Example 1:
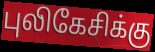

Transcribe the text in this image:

புலிகேசிக்கு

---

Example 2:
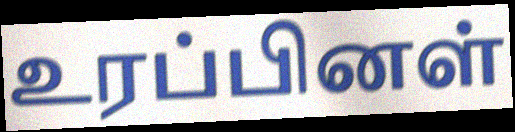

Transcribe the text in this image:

உரப்பினள்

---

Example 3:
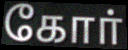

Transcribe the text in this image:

கோர்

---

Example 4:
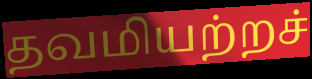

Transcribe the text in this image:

தவமியற்றச்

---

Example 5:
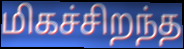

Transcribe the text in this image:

மிகச்சிறந்த